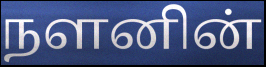
நளனின்